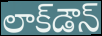
లాక్‌డౌన్